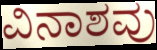
ವಿನಾಶವು